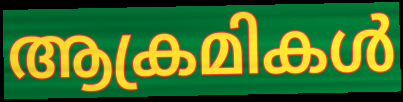
ആക്രമികൾ